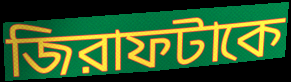
জিরাফটাকে